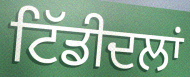
ਟਿੱਡੀਦਲਾਂ